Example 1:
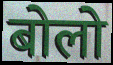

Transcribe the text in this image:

बोलो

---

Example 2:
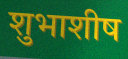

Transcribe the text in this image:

शुभाशीष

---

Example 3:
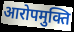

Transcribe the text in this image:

आरोपमुक्ति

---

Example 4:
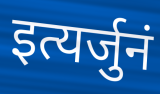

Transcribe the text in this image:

इत्यर्जुनं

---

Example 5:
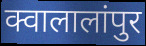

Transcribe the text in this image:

क्वालालांपुर